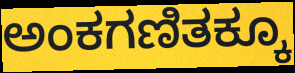
ಅಂಕಗಣಿತಕ್ಕೂ